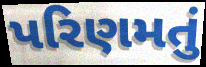
પરિણમતું